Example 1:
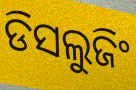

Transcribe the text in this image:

ଡିସଲୁଜିଂ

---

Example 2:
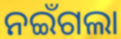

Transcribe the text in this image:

ନଇଁଗଲା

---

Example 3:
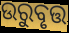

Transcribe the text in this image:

ଉରୁବୃତ୍ତ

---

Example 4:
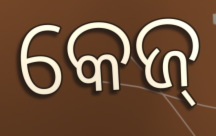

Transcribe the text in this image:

କେଜ୍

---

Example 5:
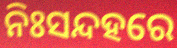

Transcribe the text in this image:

ନିଃସନ୍ଦହରେ